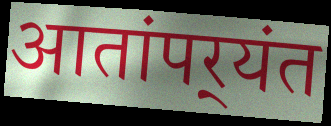
आतांपर्यंत